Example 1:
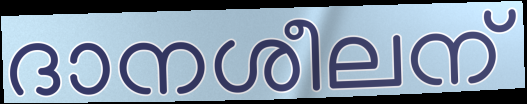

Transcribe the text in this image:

ദാനശീലന്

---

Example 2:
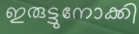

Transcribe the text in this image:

ഇരുട്ടുനോക്കി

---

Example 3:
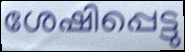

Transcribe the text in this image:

ശേഷിപ്പെട്ടു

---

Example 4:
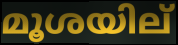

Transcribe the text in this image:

മൂശയില്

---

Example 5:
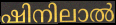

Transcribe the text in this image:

ഷിനിലാൽ